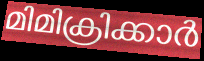
മിമിക്രിക്കാർ